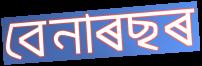
বেনাৰছৰ